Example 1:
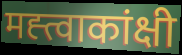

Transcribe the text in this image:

मह्त्वाकांक्षी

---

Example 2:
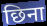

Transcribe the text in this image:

छिना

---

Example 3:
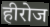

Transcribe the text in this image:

हीरोज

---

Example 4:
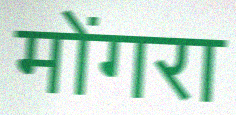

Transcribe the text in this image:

मोंगरा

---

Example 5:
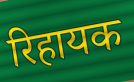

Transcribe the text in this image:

रिहायक